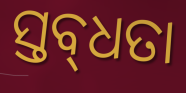
ସ୍ତବ୍‍ଧତା